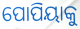
ପୋପିୟାକୁ